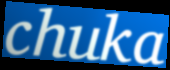
chuka